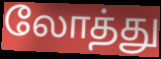
லோத்து